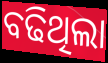
ବଢିଥିଲା